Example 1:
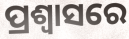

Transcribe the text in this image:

ପ୍ରଶ୍ବାସରେ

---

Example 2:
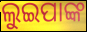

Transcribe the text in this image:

ଲୁଇପାଙ୍କ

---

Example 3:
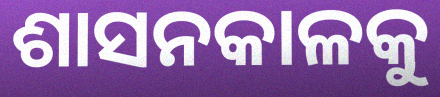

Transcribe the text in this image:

ଶାସନକାଳକୁ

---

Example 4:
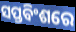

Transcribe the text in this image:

ସପ୍ତବିଂଶରେ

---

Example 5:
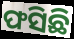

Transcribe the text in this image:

ଫସିଛି